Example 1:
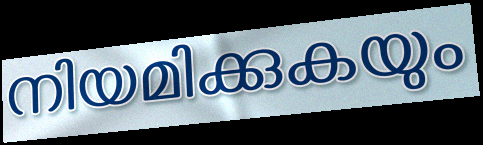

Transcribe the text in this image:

നിയമിക്കുകയും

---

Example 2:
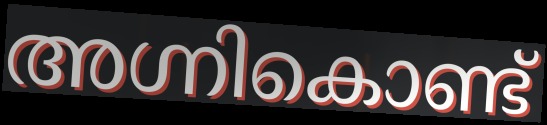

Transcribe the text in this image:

അഗ്നികൊണ്ട്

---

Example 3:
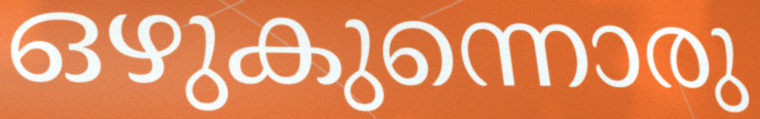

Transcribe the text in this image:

ഒഴുകുന്നൊരു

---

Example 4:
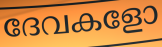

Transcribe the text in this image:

ദേവകളോ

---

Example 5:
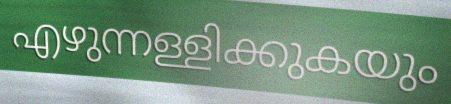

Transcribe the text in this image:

എഴുന്നള്ളിക്കുകയും